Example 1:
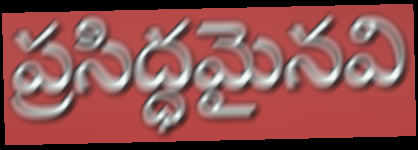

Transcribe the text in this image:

ప్రసిద్ధమైనవి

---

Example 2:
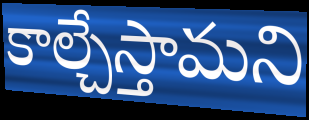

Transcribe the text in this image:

కాల్చేస్తామని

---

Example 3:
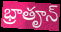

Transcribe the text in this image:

భ్రాతౄన్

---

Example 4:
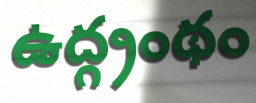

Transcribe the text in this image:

ఉద్గ్రంథం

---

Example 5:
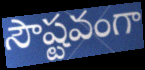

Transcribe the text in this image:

సౌష్టవంగా